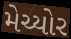
મેચ્યોર